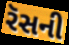
રૅસની